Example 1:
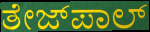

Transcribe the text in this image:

ತೇಜ್‌ಪಾಲ್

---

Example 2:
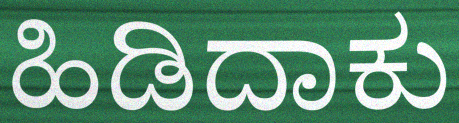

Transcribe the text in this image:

ಹಿಡಿದಾಕು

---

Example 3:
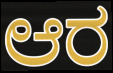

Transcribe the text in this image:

ಆರ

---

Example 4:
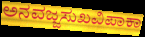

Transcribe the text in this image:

ಅನವಜ್ಜಸುಖವಿಪಾಕಾ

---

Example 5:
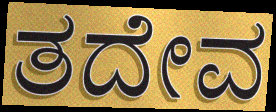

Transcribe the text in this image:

ತದೇವ